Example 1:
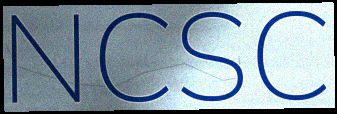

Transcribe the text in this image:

NCSC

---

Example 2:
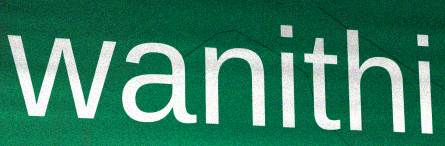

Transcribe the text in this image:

wanithi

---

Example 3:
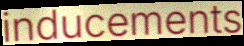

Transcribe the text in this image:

inducements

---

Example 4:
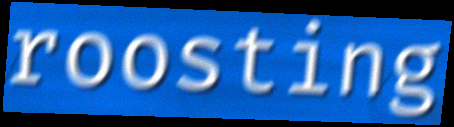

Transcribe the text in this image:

roosting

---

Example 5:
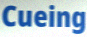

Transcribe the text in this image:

Cueing